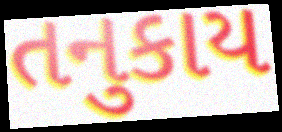
તનુકાય